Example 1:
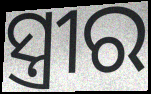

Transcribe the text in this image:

ସ୍ତ୍ରୀର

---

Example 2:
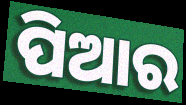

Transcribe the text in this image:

ପିଆର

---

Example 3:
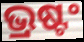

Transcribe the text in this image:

ଭ୍ରଷ୍ଟଂ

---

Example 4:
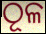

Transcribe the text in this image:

ଠୂଳ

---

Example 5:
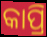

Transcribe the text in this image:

କାପ୍ରି